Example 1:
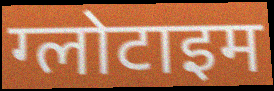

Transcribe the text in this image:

ग्लोटाइम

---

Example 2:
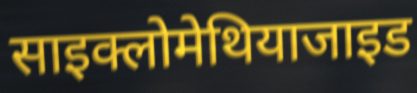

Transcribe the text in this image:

साइक्लोमेथियाजाइड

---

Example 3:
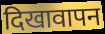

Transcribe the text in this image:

दिखावापन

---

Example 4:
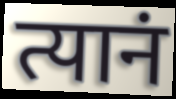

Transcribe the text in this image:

त्यानं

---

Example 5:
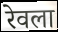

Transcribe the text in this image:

रेवला